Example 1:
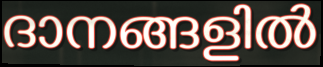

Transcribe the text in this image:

ദാനങ്ങളിൽ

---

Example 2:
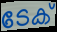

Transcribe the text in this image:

ടേക്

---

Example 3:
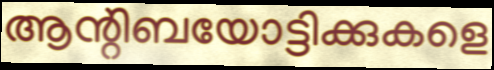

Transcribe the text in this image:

ആന്റിബയോട്ടിക്കുകളെ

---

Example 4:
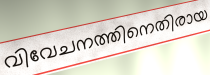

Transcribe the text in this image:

വിവേചനത്തിനെതിരായ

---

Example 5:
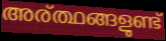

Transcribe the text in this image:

അര്ത്ഥങ്ങളുണ്ട്